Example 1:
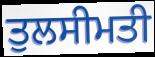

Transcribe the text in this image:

ਤੁਲਸੀਮਤੀ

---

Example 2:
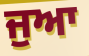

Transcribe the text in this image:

ਜੁਆ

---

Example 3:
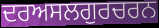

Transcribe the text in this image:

ਦਰਅਸਲਗੁਰਚਰਨ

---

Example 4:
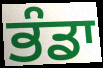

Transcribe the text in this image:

ਭੰਡਾ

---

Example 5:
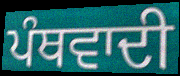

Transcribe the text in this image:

ਪੰਥਵਾਦੀ